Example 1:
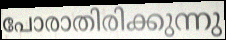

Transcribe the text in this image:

പോരാതിരിക്കുന്നു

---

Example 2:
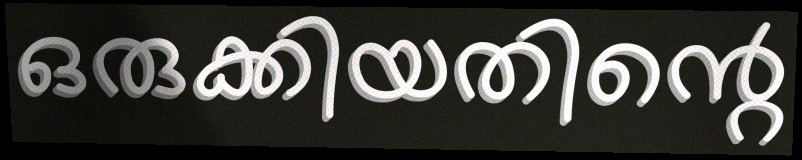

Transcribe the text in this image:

ഒരുക്കിയതിന്റെ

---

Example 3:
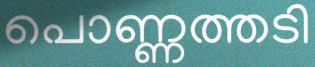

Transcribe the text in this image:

പൊണ്ണത്തടി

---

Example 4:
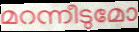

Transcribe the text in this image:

മറന്നീടുമോ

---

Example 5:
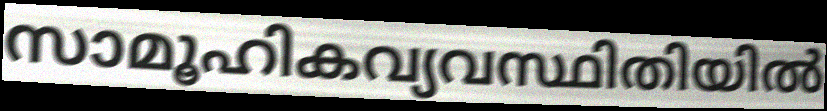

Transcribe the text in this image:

സാമൂഹികവ്യവസ്ഥിതിയിൽ